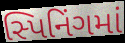
સ્પિનિંગમાં